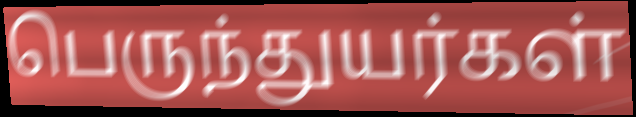
பெருந்துயர்கள்